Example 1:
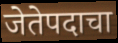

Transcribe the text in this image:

जेतेपदाचा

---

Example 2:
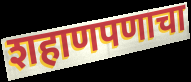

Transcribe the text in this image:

शहाणपणाचा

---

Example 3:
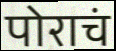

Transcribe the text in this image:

पोराचं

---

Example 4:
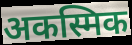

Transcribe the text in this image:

अकस्मिक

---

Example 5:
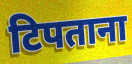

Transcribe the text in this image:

टिपताना